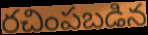
రచింపబడిన